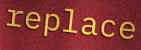
replace